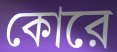
কোরে